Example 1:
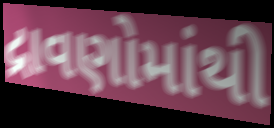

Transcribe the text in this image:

દ્રાવણોમાંથી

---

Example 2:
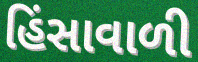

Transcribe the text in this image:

હિંસાવાળી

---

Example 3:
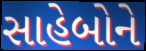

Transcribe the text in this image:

સાહેબોને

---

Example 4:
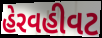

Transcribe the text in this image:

હેરવહીવટ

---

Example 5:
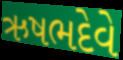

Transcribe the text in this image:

ઋષભદેવે